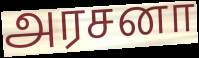
அரசனா